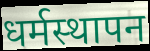
धर्मस्थापन